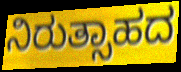
ನಿರುತ್ಸಾಹದ